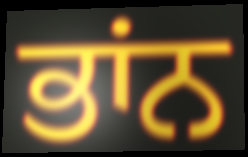
ਭਾਂਨ